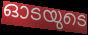
ഓടയുടെ